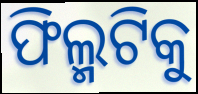
ଫିଲ୍ମଟିକୁ